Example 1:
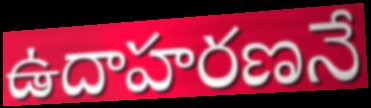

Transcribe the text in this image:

ఉదాహరణనే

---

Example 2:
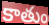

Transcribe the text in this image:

కాతుం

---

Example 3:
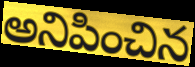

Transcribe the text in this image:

అనిపించిన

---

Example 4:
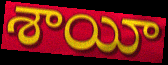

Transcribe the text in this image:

శాయీ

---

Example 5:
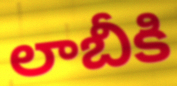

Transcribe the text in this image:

లాబీకి